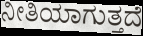
ನೀತಿಯಾಗುತ್ತದೆ